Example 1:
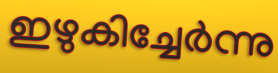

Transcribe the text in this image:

ഇഴുകിച്ചേർന്നു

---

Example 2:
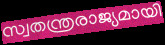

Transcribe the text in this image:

സ്വതന്ത്രരാജ്യമായി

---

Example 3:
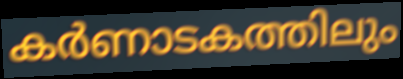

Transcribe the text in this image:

കർണാടകത്തിലും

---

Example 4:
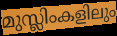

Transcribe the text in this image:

മുസ്ലിംകളിലും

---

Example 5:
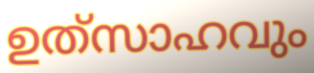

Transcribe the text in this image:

ഉത്‌സാഹവും